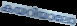
കയറിയാലോ